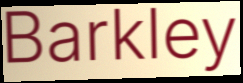
Barkley